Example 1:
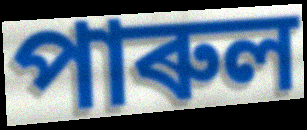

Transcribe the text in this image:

পাৰুল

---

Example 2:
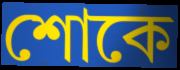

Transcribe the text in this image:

শোকে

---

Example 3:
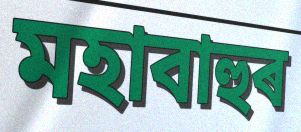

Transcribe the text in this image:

মহাবাহুৰ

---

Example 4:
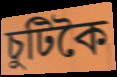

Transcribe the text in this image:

চুটিকৈ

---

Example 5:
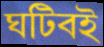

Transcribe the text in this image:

ঘটিবই